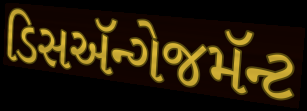
ડિસઍન્ગેજમૅન્ટ